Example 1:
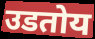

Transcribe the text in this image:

उडतोय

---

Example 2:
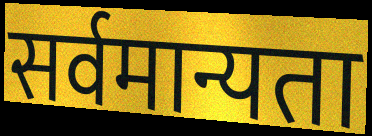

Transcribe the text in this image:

सर्वमान्यता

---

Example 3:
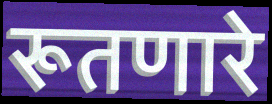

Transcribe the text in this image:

रूतणारे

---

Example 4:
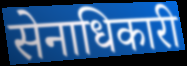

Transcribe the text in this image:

सेनाधिकारी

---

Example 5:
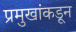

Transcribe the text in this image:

प्रमुखांकडून